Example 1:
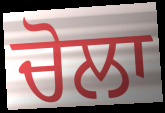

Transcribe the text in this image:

ਚੋਲਾ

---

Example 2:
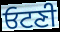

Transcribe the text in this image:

ਓਟਣੀ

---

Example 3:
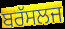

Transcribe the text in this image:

ਬਰੱਸਲਜ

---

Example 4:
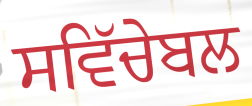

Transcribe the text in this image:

ਸਵਿੱਚੇਬਲ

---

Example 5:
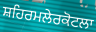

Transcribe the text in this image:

ਸ਼ਹਿਰਮਲੇਰਕੋਟਲਾ